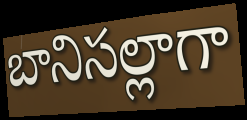
బానిసల్లాగా